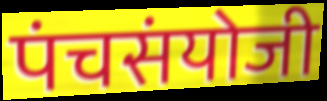
पंचसंयोजी